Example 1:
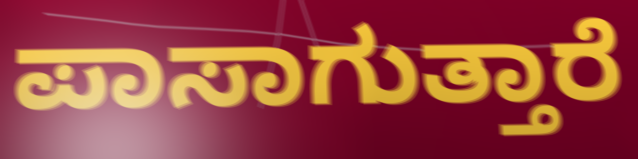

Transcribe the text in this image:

ಪಾಸಾಗುತ್ತಾರೆ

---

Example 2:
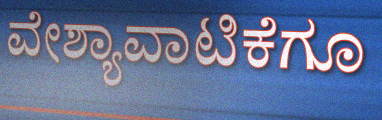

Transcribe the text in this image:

ವೇಶ್ಯಾವಾಟಿಕೆಗೂ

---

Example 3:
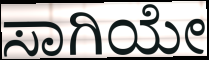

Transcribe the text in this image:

ಸಾಗಿಯೇ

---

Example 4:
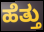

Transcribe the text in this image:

ಹೆತ್ತು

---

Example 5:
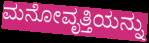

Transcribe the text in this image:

ಮನೋವೃತ್ತಿಯನ್ನು